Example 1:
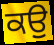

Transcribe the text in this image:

ਕਉੁ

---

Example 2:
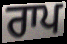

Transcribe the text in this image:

ਰਾਪ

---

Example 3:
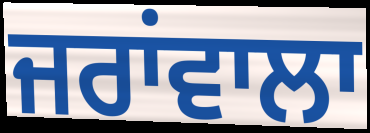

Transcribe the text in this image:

ਜਰਾਂਵਾਲਾ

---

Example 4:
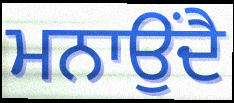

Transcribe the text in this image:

ਮਨਾਉਂਦੈ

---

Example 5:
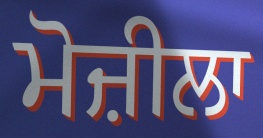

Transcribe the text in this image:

ਮੋਜ਼ੀਲਾ